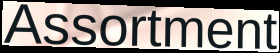
Assortment